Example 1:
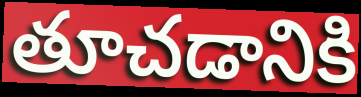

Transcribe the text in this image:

తూచడానికి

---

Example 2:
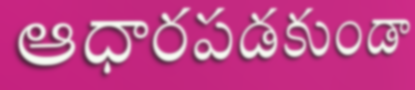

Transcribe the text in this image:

ఆధారపడకుండా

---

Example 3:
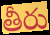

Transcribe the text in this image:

తీరు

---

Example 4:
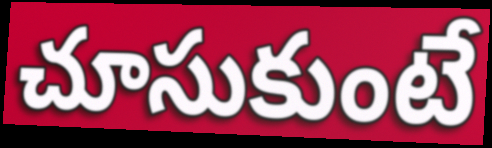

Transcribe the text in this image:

చూసుకుంటే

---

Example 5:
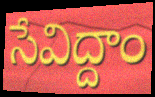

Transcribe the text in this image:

సేవిద్దాం